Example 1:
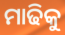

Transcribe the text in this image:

ମାଢିକୁ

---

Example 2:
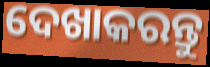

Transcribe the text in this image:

ଦେଖାକରନ୍ତୁ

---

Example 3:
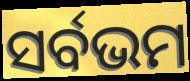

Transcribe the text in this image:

ସର୍ବଭମ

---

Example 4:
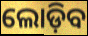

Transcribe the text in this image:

ଲୋଡ଼ିବ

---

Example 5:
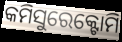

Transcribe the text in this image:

କମିସୁରେକ୍ଟୋମି